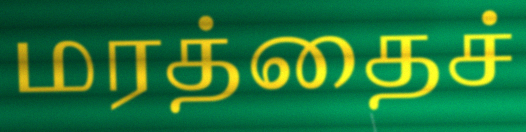
மரத்தைச்